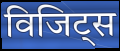
विजिट्स